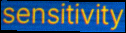
sensitivity